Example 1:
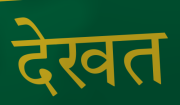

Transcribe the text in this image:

देखत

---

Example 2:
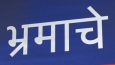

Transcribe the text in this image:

भ्रमाचे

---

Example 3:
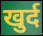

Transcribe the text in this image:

खुर्द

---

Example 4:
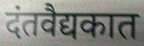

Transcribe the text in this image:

दंतवैद्यकात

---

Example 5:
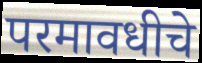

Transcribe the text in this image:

परमावधीचे